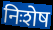
निःशेष